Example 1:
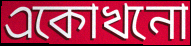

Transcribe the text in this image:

একোখনো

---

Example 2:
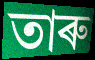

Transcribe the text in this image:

তাৰু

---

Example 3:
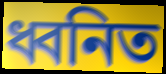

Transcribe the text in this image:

ধ্বনিত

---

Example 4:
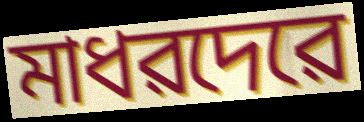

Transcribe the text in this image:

মাধৱদেৱে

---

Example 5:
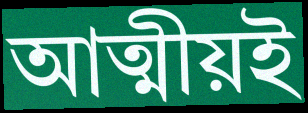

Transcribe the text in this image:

আত্মীয়ই